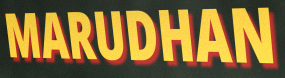
MARUDHAN